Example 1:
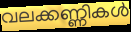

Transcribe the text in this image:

വലക്കണ്ണികൾ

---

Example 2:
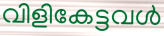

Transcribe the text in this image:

വിളികേട്ടവൾ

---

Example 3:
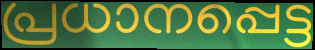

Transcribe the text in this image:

പ്രധാനപ്പെട്ട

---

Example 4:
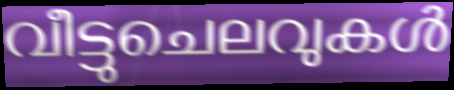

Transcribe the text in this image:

വീട്ടുചെലവുകൾ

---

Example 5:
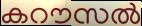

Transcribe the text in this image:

കറൗസൽ